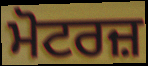
ਮੋਟਰਜ਼